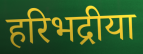
हरिभद्रीया